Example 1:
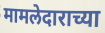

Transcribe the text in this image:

मामलेदाराच्या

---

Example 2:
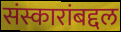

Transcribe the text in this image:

संस्कारांबद्दल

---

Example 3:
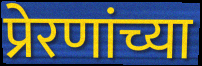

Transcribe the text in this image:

प्रेरणांच्या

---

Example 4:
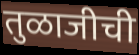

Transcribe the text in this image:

तुळाजीची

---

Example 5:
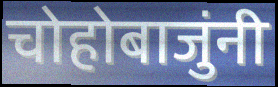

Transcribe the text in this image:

चोहोबाजुंनी